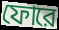
ফোরে